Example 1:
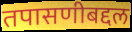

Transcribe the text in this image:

तपासणीबद्दल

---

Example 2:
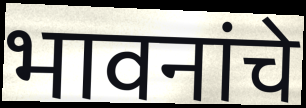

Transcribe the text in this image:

भावनांचे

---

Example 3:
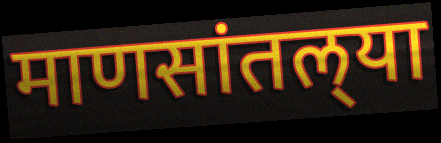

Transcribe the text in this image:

माणसांतल्या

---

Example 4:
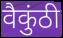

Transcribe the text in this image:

वैकुंठी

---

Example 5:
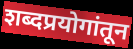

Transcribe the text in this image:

शब्दप्रयोगांतून